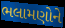
ભલામણોને